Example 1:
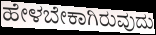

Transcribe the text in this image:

ಹೇಳಬೇಕಾಗಿರುವುದು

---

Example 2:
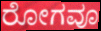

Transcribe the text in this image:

ರೋಗವೂ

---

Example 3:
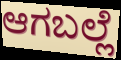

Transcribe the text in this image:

ಆಗಬಲ್ಲೆ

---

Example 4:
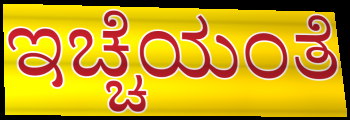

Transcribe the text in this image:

ಇಚ್ಚೆಯಂತೆ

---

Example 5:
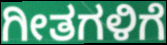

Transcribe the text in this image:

ಗೀತಗಳಿಗೆ